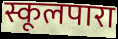
स्कूलपारा